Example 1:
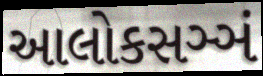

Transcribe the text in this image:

આલોકસઞ્ઞં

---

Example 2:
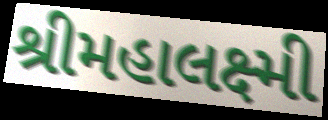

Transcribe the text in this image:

શ્રીમહાલક્ષ્મી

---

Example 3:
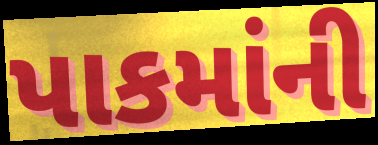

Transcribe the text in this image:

પાકમાંની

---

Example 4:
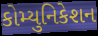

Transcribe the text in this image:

કોમ્યુનિકેશન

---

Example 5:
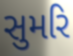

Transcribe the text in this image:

સુમરિ